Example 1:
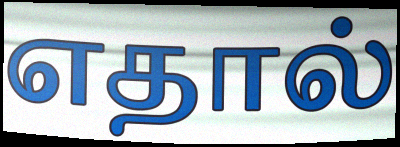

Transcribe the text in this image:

எதால்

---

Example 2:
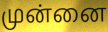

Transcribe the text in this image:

முன்னை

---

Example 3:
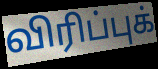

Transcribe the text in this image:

விரிப்புக்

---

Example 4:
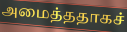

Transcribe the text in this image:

அமைத்ததாகச்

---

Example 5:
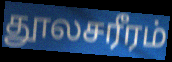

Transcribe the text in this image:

தூலசரீரம்